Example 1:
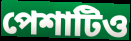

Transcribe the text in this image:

পেশাটিও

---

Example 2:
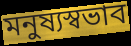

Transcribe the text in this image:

মনুষ্যস্বভাব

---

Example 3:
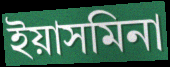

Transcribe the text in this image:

ইয়াসমিনা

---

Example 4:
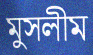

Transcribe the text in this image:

মুসলীম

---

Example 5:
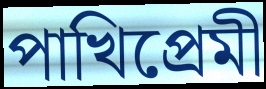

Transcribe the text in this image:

পাখিপ্রেমী